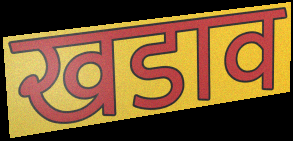
खडाव